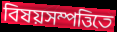
বিষয়সম্পত্তিতে